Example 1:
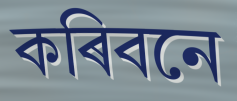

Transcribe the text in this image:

কৰিবনে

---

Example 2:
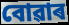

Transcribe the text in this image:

বোৱাৰ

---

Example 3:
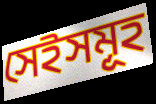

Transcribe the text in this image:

সেইসমূহ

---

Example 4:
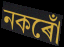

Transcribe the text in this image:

নকৰোঁ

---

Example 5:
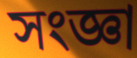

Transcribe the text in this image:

সংজ্ঞা